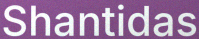
Shantidas